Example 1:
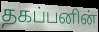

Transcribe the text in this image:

தகப்பனின்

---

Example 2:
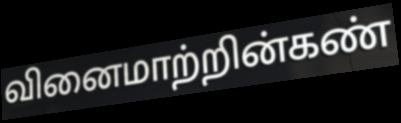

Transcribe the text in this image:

வினைமாற்றின்கண்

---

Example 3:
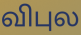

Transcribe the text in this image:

விபுல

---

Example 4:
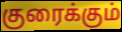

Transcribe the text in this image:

குரைக்கும்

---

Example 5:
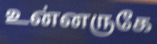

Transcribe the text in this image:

உன்னருகே